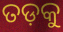
ତଡ଼କୁ